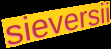
sieversii